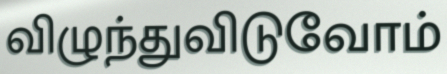
விழுந்துவிடுவோம்